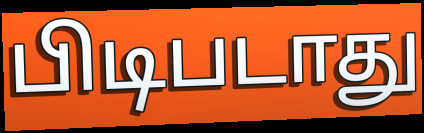
பிடிபடாது